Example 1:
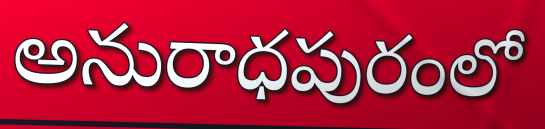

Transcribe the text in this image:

అనురాధపురంలో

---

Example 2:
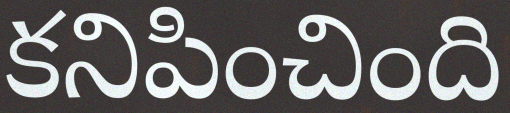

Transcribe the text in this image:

కనిపించింది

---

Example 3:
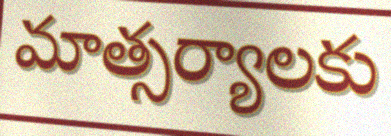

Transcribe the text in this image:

మాత్సర్యాలకు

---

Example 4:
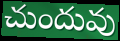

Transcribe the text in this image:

చుందువు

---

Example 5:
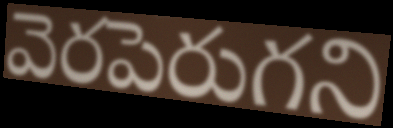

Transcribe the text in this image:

వెరపెరుగని